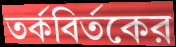
তর্কবির্তকের